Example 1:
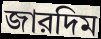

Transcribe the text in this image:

জারদিম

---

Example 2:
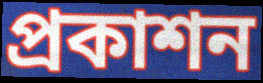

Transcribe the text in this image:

প্রকাশন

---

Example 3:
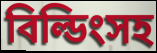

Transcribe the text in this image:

বিল্ডিংসহ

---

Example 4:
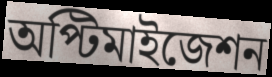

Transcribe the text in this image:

অপ্টিমাইজেশন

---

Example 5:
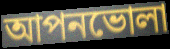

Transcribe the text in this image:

আপনভোলা